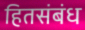
हितसंबंध